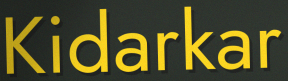
Kidarkar